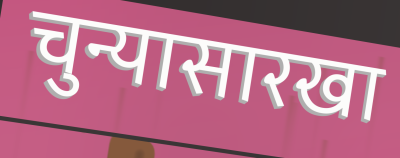
चुन्यासारखा